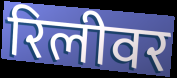
रिलीवर